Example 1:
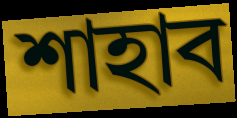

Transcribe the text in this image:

শাহাব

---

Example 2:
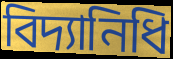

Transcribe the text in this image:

বিদ্যানিধি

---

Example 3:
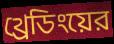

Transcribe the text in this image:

থ্রেডিংয়ের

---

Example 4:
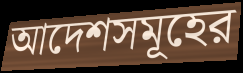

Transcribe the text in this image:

আদেশসমূহের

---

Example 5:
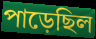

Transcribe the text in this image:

পাড়েছিল